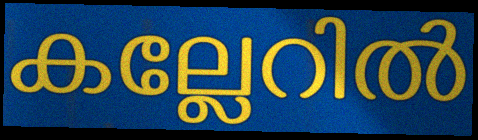
കല്ലേറിൽ